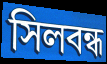
সিলবন্ধ